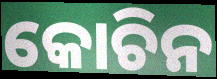
କୋଚିନ